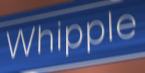
Whipple